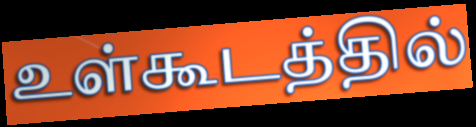
உள்கூடத்தில்